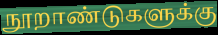
நூறாண்டுகளுக்கு